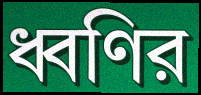
ধ্বণির